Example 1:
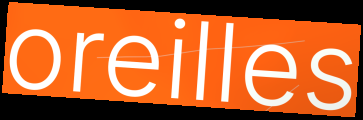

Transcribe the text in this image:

oreilles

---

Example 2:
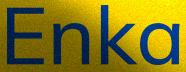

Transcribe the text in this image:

Enka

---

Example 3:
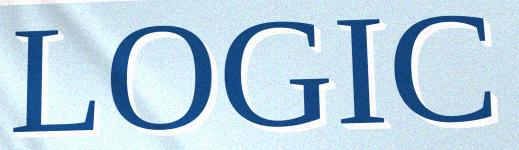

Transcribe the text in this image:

LOGIC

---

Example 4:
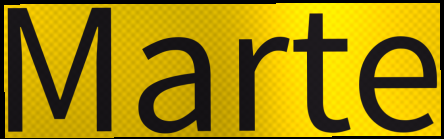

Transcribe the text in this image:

Marte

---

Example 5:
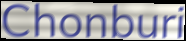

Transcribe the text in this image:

Chonburi